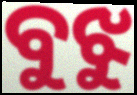
ବୁଝୁ